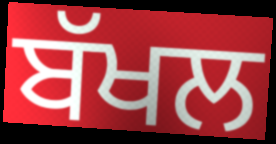
ਬੱਖਲ